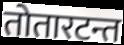
तोतारटन्त